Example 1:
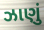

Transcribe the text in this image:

ઝાણું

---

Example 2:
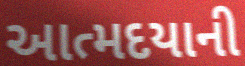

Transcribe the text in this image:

આત્મદયાની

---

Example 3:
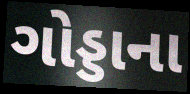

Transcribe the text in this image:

ગોડ્ડાના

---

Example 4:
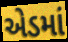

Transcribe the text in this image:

એડમાં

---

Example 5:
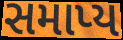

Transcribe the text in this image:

સમાપ્ય